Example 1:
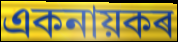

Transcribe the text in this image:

একনায়কৰ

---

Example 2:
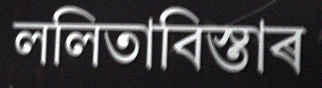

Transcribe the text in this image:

ললিতাবিস্তাৰ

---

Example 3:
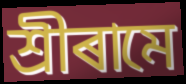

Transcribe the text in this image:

শ্ৰীৰামে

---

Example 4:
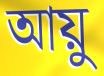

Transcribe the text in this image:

আয়ু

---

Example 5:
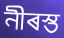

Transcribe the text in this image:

নীৰস্ত